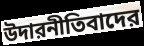
উদারনীতিবাদের